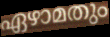
ഏഴാമതും